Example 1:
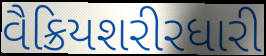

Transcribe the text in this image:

વૈક્રિયશરીરધારી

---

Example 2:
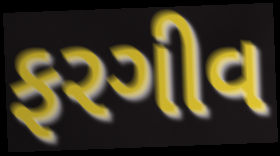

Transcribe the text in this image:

ફરગીવ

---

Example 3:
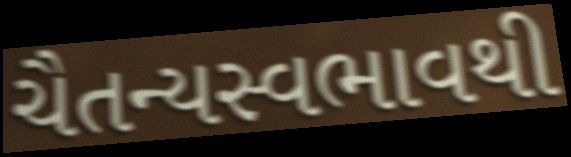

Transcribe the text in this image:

ચૈતન્યસ્વભાવથી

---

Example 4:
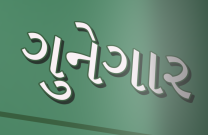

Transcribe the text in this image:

ગુનેગાર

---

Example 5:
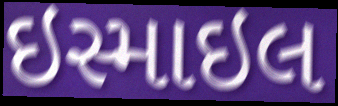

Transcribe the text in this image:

ઇસ્માઇલ